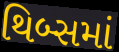
થિબ્સમાં